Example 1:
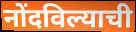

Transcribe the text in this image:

नोंदविल्याची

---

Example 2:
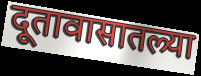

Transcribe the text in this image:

दूतावासातल्या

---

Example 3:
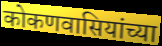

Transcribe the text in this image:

कोकणवासियांच्या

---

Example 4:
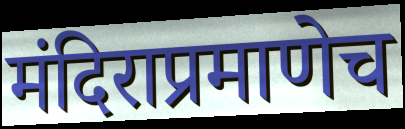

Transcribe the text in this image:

मंदिराप्रमाणेच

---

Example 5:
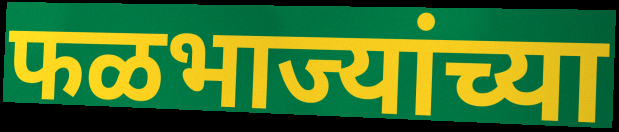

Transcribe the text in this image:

फळभाज्यांच्या